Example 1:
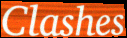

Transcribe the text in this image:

Clashes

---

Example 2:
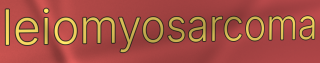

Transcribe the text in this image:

leiomyosarcoma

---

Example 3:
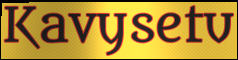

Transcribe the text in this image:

Kavysetu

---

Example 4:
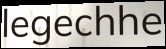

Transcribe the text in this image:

legechhe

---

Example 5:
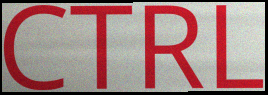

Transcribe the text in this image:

CTRL